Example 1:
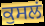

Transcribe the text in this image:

ਕੁਸਲਂ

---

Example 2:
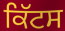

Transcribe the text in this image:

ਕਿੱਟਸ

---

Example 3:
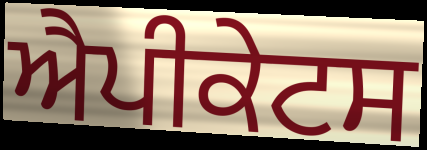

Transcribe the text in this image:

ਐਪੀਕੇਟਸ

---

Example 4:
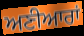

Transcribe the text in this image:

ਅਣੀਆਰਾਂ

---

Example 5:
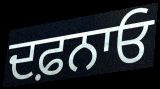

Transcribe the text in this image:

ਦਫ਼ਨਾਓ